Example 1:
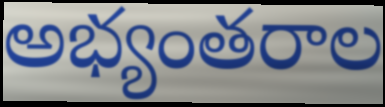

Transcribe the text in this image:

అభ్యంతరాల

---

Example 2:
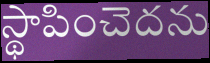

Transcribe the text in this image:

స్థాపించెదను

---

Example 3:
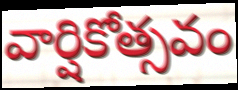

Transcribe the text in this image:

వార్షికోత్సవం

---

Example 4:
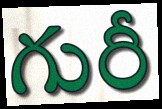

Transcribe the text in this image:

గురీ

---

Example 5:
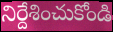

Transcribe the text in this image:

నిర్దేశించుకోండి